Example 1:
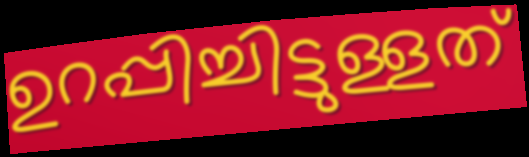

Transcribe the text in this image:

ഉറപ്പിച്ചിട്ടുള്ളത്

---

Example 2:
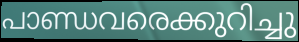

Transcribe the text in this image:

പാണ്ഡവരെക്കുറിച്ചു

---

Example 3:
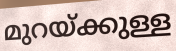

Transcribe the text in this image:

മുറയ്ക്കുള്ള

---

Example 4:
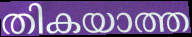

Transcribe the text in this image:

തികയാത്ത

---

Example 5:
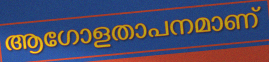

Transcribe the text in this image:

ആഗോളതാപനമാണ്